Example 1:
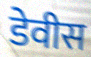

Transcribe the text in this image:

डेवीस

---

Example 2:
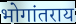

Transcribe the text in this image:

भोगांतराय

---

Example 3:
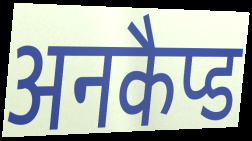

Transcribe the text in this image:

अनकैप्ड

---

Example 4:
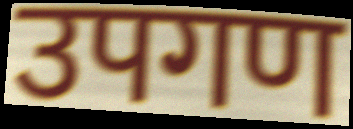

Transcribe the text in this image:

उपगण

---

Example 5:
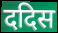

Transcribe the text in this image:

ददिस